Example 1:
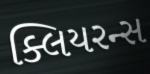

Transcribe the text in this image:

ક્લિયરન્સ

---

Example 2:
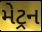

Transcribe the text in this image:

મેટ્રન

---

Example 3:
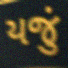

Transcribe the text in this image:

યજું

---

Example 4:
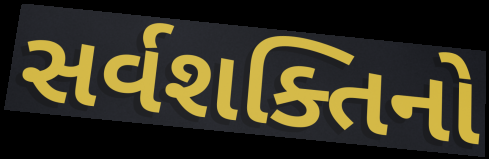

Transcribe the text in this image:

સર્વશક્તિનો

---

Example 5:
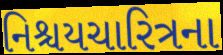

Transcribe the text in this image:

નિશ્ચયચારિત્રના